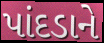
પાંદડાને